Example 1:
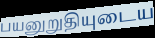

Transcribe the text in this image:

பயனுறுதியுடைய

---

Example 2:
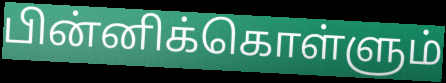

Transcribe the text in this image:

பின்னிக்கொள்ளும்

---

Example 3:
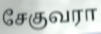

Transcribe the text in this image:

சேகுவரா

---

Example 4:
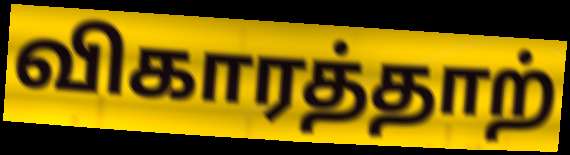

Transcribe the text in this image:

விகாரத்தாற்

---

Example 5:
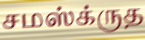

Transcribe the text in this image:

சமஸ்க்ருத